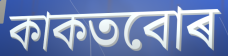
কাকতবোৰ